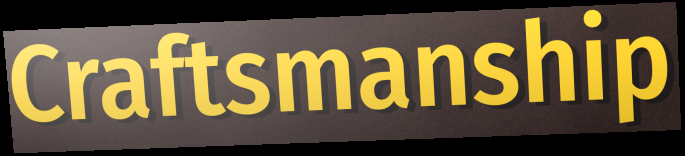
Craftsmanship